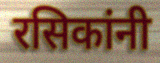
रसिकांनी